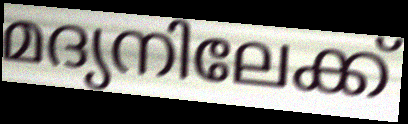
മദ്യനിലേക്ക്